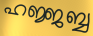
ഹജ്ജബ്ബ